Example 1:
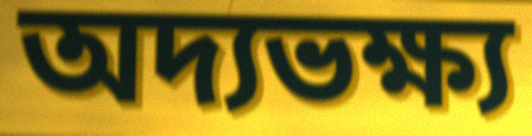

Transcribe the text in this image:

অদ্যভক্ষ্য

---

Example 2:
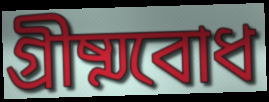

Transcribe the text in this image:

গ্রীষ্মবোধ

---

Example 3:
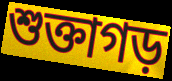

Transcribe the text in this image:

শুক্তাগড়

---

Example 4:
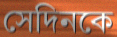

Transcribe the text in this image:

সেদিনকে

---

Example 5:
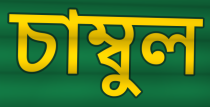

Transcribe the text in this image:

চাম্বুল